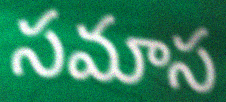
సమాస